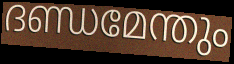
ദണ്ഡമേന്തും